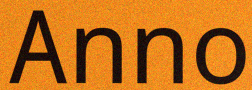
Anno